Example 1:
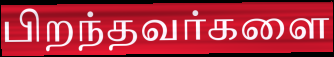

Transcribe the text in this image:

பிறந்தவர்களை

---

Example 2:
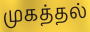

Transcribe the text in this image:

முகத்தல்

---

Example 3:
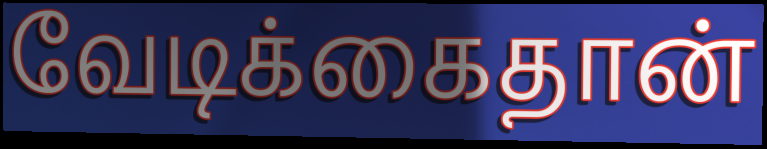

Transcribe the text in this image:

வேடிக்கைதான்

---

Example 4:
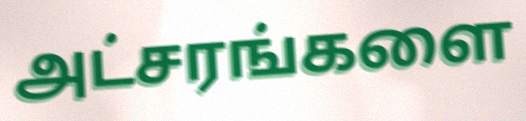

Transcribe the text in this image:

அட்சரங்களை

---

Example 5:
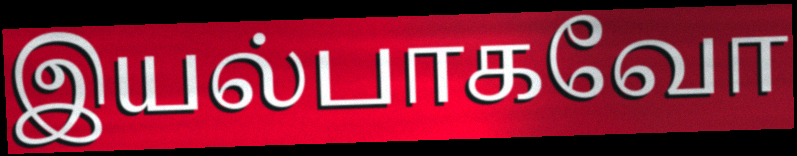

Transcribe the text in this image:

இயல்பாகவோ